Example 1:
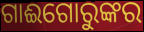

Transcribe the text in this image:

ଗାଈଗୋରୁଙ୍କର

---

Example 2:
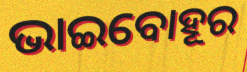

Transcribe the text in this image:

ଭାଇବୋହୂର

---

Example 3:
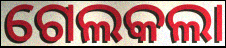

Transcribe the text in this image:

ଗେଲକଲା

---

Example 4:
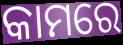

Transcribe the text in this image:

କାମରେ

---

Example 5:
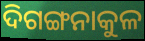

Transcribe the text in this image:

ଦିଗଙ୍ଗନାକୁଳ